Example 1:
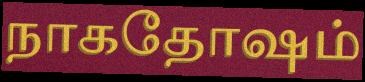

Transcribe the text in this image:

நாகதோஷம்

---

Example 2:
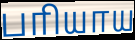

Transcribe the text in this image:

பரியாய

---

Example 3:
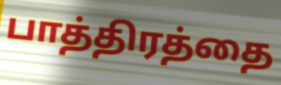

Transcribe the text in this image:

பாத்திரத்தை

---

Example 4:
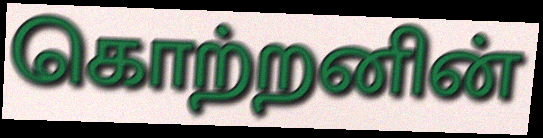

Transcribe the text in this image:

கொற்றனின்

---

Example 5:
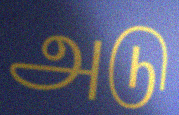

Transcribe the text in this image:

அடு